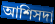
আশিসদা